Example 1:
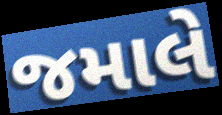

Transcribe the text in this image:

જમાલે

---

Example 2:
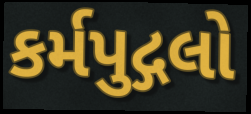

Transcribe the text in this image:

કર્મપુદ્ગલો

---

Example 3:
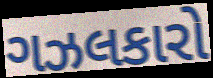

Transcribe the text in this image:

ગઝલકારો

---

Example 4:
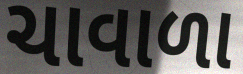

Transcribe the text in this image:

ચાવાળા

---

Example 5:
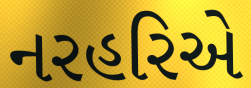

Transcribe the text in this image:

નરહરિએ